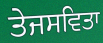
ਤੇਜਸਵਿਤਾ